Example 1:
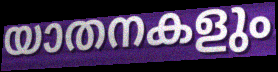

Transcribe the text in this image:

യാതനകളും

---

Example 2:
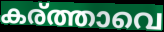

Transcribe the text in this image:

കര്ത്താവെ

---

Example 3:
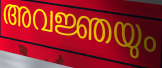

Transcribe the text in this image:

അവജ്ഞയും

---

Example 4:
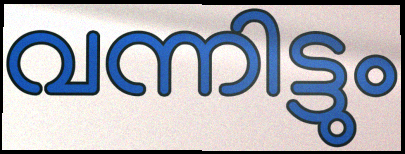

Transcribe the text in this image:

വന്നിട്ടും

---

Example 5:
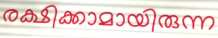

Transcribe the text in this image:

രക്ഷിക്കാമായിരുന്ന